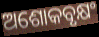
ଅଶୋକବୃକ୍ଷଂ